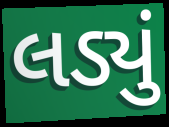
લડ્યું